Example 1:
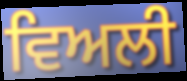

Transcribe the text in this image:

ਵਿਅਲੀ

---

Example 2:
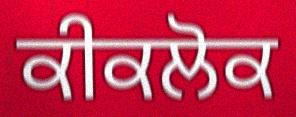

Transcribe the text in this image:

ਕੀਕਲੋਕ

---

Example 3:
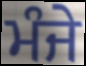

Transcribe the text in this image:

ਮੰਜੇ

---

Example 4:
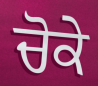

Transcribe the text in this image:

ਚੋਕੇ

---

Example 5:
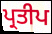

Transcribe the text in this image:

ਪ੍ਰਤੀਪ